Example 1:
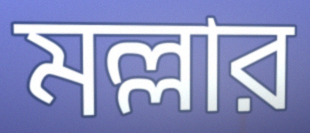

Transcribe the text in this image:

মল্লার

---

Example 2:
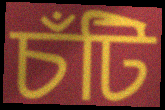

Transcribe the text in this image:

চঁটি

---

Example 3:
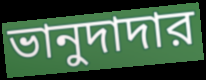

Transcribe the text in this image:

ভানুদাদার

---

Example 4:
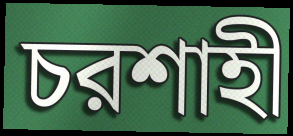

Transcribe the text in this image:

চরশাহী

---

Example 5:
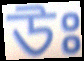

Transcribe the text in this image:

উঃ